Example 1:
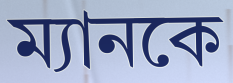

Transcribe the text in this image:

ম্যানকে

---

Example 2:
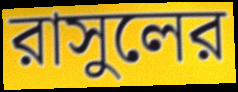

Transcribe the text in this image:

রাসুলের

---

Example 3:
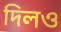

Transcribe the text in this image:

দিলও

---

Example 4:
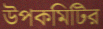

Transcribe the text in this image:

উপকমিটির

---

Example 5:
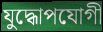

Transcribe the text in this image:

যুদ্ধোপযোগী